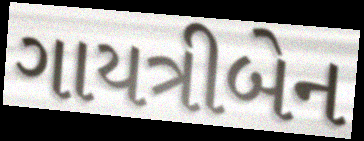
ગાયત્રીબેન